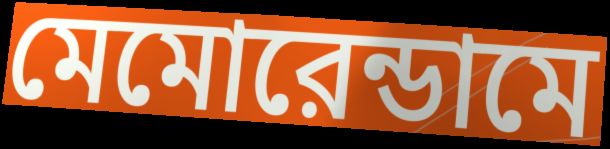
মেমোরেন্ডামে